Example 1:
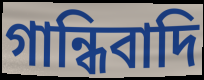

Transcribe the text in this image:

গান্ধিবাদি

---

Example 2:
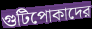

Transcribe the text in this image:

গুটিপোকাদের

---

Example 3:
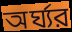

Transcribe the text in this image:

অর্ঘ্যর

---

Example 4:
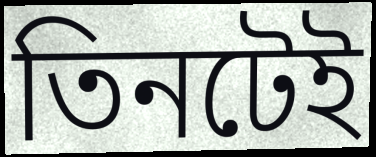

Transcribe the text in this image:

তিনটেই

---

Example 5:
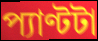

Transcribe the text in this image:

প্যাণ্টটা